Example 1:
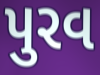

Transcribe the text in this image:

પુરવ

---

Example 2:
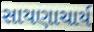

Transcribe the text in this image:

સાયણાચાર્ય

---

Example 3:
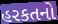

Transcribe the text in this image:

હરકતનો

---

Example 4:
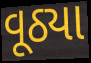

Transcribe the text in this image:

વૂઠ્યા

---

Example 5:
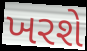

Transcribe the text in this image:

ખરશે